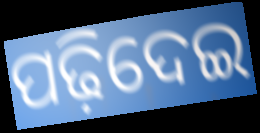
ପଢ଼ିଦେଇ